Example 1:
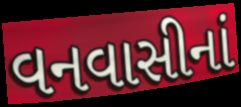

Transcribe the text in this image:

વનવાસીનાં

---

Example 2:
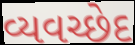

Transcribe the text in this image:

વ્યવચ્છેદ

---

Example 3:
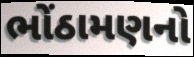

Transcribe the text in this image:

ભોંઠામણનો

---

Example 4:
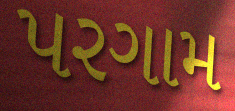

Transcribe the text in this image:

પરગામ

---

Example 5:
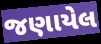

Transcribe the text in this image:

જણાયેલ